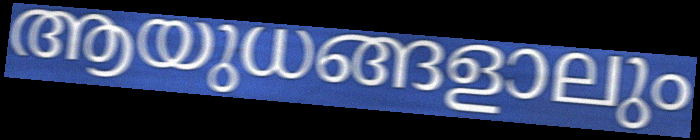
ആയുധങ്ങളാലും